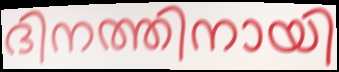
ദിനത്തിനായി